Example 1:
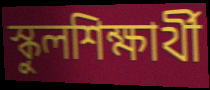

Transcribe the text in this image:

স্কুলশিক্ষার্থী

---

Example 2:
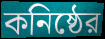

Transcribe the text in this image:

কনিষ্ঠের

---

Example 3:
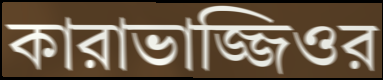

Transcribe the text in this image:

কারাভাজ্জিওর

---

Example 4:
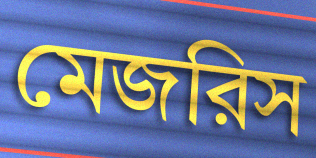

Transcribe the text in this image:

মেজরিস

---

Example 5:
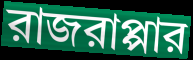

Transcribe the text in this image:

রাজরাপ্পার